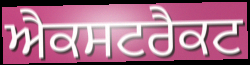
ਐਕਸਟਰੈਕਟ